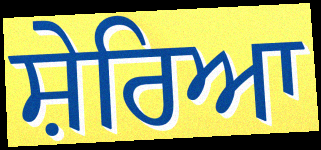
ਸ਼ੇਰਿਆ